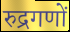
रुद्रगणों